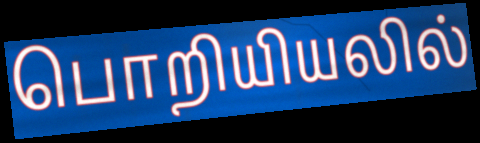
பொறியியலில்